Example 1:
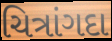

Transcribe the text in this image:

ચિત્રાંગદા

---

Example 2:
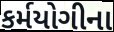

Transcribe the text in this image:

કર્મયોગીના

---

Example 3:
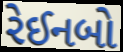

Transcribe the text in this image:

રેઈનબો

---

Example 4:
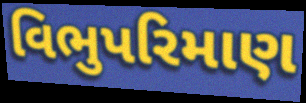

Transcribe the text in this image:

વિભુપરિમાણ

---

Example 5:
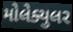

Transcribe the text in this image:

મોલેક્યુલર